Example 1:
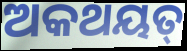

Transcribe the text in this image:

ଅକଥୟତ୍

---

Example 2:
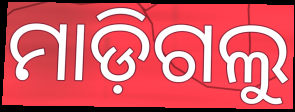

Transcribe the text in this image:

ମାଡ଼ିଗଲୁ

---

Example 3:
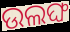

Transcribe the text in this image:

ଉଲଙ୍ଘ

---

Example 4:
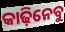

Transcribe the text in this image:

କାଢ଼ିନେବୁ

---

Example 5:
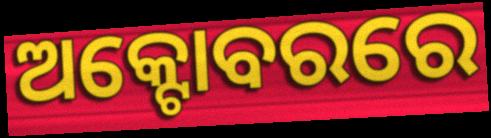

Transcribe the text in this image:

ଅକ୍ଟୋବରରେ